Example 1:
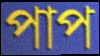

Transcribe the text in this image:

পাপ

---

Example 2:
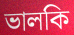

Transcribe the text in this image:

ভালকি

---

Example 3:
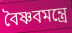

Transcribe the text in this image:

বৈষ্ণবমন্ত্রে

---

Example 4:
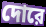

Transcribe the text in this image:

দোরে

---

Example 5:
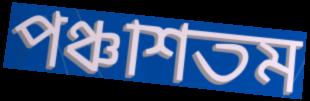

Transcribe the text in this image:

পঞ্চাশতম